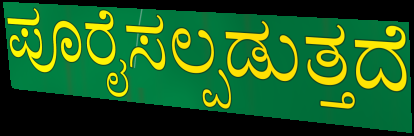
ಪೂರೈಸಲ್ಪಡುತ್ತದೆ